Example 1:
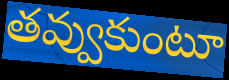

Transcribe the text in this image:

తవ్వుకుంటూ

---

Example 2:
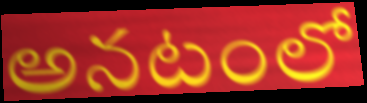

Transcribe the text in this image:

అనటంలో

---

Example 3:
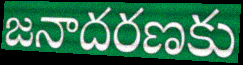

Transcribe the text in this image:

జనాదరణకు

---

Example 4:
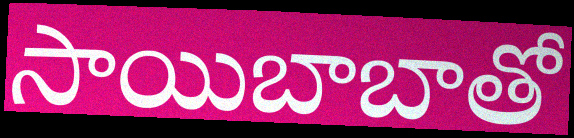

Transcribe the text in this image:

సాయిబాబాతో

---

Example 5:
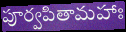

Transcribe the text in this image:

పూర్వపితామహాః